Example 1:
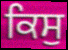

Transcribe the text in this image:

ਕਿਸੁ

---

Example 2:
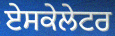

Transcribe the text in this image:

ਏਸਕੇਲੇਟਰ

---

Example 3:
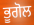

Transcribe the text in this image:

ਭੂਗੋਲ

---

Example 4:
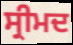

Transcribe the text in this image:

ਸ੍ਰੀਮਦ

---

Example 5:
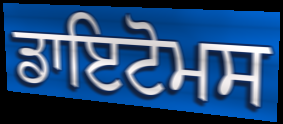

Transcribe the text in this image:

ਡਾਇਟੋਮਸ